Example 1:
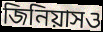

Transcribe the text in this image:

জিনিয়াসও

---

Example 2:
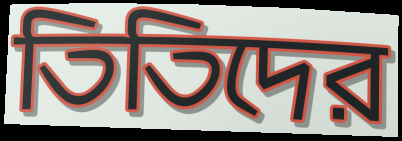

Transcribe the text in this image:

তিতিদের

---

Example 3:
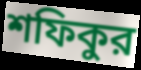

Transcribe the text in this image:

শফিকুর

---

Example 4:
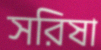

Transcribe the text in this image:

সরিষা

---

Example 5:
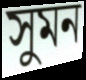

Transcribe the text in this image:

সুমন